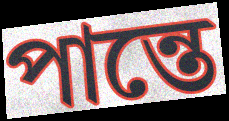
পান্তে